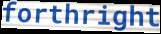
forthright